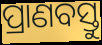
ପ୍ରାଣବସ୍ତୁ